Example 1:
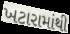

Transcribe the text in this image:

ખટારામાંથી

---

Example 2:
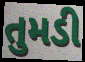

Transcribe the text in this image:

તુમડી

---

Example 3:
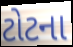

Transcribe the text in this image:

ટોટના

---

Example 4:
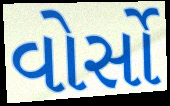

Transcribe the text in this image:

વોર્સો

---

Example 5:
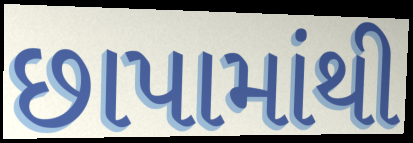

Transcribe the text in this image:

છાપામાંથી